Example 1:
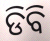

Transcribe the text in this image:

ଡିବି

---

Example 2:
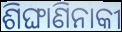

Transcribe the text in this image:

ଶିଙ୍ଘାଣିନାକୀ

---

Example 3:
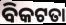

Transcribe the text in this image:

ବିକଟତା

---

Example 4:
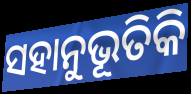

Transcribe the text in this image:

ସହାନୁଭୂତିକି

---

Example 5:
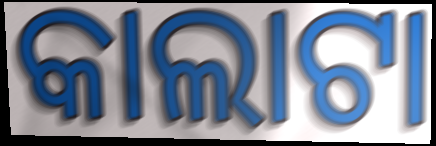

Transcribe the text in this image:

କାଲାଟା